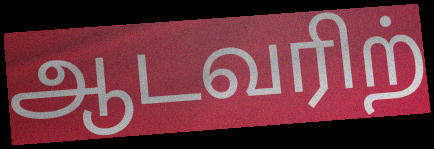
ஆடவரிற்